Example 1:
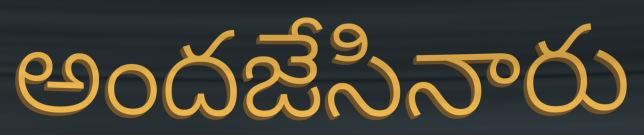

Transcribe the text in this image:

అందజేసినారు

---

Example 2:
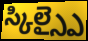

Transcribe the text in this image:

స్కిల్స్పై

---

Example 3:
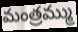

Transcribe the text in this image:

మంత్రమ్ము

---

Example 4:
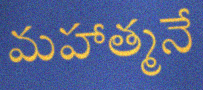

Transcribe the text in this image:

మహాత్మనే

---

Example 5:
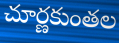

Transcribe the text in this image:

చూర్ణకుంతల